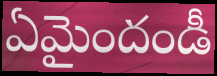
ఏమైందండీ